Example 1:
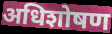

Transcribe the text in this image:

अधिशोषण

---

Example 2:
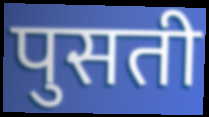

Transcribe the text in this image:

पुसती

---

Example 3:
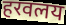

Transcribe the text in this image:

हरवलय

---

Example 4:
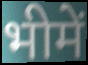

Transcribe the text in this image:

भीमें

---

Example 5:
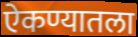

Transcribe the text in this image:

ऐकण्यातला